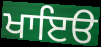
ਖਾਇੳ